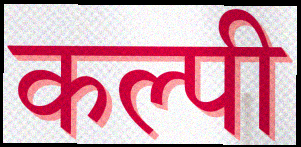
कल्पी